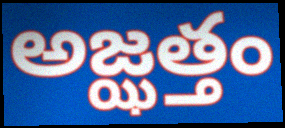
అజ్ఝత్తం